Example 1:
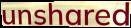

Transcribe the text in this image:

unshared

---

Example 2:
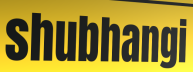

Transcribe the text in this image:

shubhangi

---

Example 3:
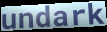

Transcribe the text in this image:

undark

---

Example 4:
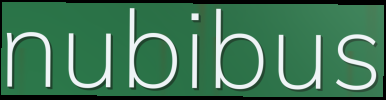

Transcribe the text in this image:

nubibus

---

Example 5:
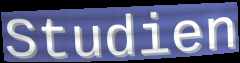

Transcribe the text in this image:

Studien